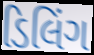
ડિલિંગ